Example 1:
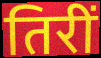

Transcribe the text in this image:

तिरीं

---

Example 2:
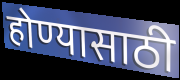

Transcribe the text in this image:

होण्यासाठी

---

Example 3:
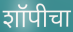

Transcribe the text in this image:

शॉपीचा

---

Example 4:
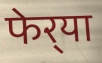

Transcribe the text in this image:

फेर्‍या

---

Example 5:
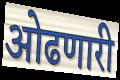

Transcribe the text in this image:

ओढणारी